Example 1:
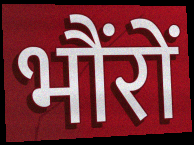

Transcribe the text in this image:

भौंरों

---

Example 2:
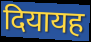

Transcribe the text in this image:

दियायह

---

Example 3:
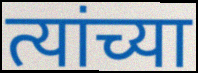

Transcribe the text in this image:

त्यांच्या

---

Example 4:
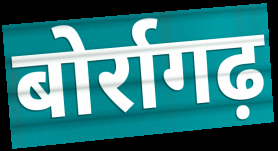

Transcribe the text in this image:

बोर्रागढ़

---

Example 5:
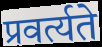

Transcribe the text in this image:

प्रवर्त्यते